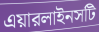
এয়ারলাইনসটি